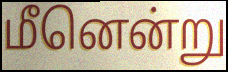
மீனென்று